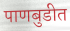
पाणबुडीत